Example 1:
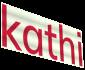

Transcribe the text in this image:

kathi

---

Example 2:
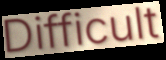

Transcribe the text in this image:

Difficult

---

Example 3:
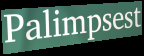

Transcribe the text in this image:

Palimpsest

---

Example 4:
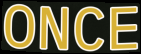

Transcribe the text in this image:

ONCE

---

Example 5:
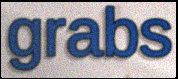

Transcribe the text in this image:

grabs